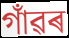
গাঁৱৰ